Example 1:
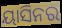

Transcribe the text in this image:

ୟାସିନର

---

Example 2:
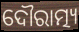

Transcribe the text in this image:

ଦୌରାତ୍ମ୍ୟ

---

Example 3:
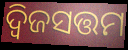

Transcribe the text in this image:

ଦ୍ୱିଜସତ୍ତମ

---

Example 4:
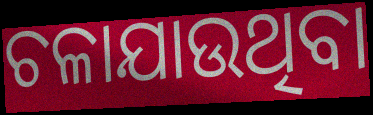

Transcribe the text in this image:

ଚଳାଯାଉଥିବା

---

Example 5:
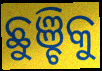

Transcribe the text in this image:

ଛୁଞ୍ଚିକୁ